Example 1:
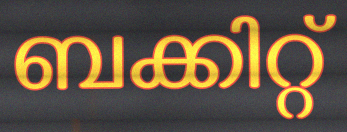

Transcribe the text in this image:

ബക്കിറ്റ്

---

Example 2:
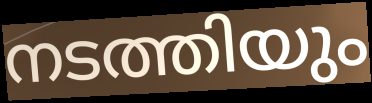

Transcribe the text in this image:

നടത്തിയും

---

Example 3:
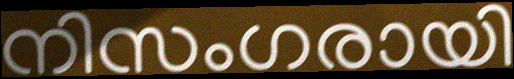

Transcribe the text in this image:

നിസംഗരായി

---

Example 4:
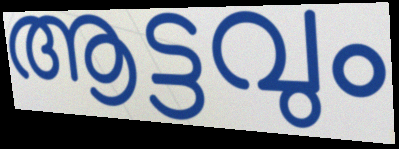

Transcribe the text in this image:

ആട്ടവും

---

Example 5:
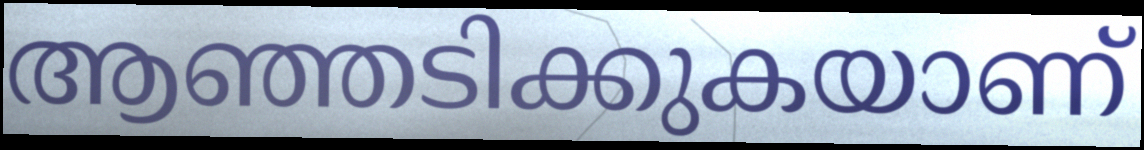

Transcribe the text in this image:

ആഞ്ഞടിക്കുകയാണ്